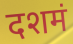
दशमं